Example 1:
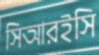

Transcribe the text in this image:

সিআরইসি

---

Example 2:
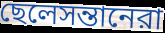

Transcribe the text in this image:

ছেলেসন্তানেরা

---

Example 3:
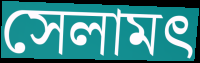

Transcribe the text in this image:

সেলামৎ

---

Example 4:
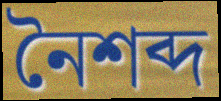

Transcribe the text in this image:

নৈশব্দ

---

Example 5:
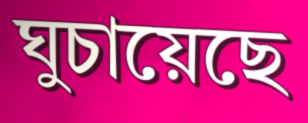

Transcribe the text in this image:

ঘুচায়েছে